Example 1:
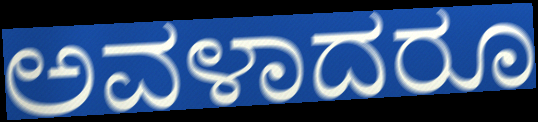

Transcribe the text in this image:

ಅವಳಾದರೂ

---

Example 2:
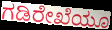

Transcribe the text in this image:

ಗಡಿರೇಖೆಯೂ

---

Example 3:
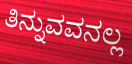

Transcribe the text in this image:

ತಿನ್ನುವವನಲ್ಲ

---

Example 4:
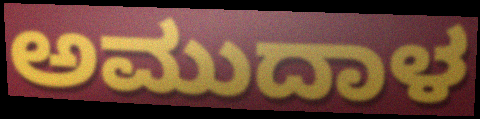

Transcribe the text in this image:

ಅಮುದಾಳ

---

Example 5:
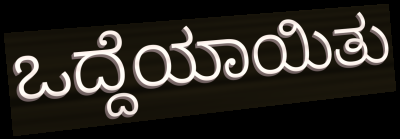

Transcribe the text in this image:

ಒದ್ದೆಯಾಯಿತು